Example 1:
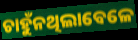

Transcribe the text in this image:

ଚାହୁଁନଥିଲାବେଳେ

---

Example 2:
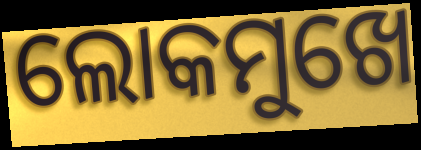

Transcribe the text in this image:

ଲୋକମୁଖେ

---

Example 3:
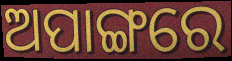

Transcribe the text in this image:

ଅପାଙ୍ଗରେ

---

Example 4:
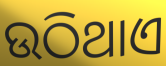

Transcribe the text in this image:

ଉଠିଥାଏ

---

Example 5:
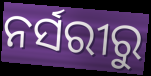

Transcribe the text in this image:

ନର୍ସରୀରୁ